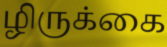
ழிருக்கை